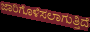
ಜಾರಿಗೊಳಿಸಲಾಗುತ್ತಿದೆ